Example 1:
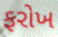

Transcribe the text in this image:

ફરોખ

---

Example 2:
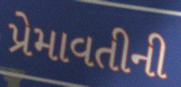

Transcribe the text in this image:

પ્રેમાવતીની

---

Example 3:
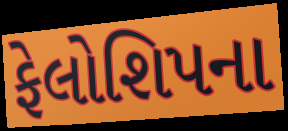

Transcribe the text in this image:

ફેલોશિપના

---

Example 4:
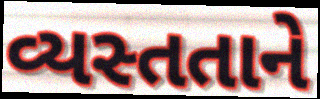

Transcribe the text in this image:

વ્યસ્તતાને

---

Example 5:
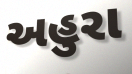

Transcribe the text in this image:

અહુરા